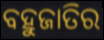
ବହୁଜାତିର